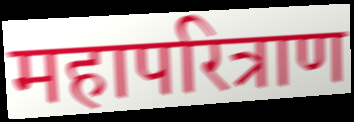
महापरित्राण